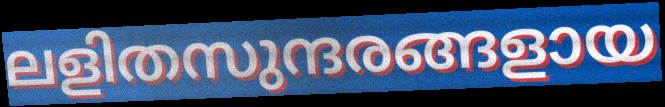
ലളിതസുന്ദരങ്ങളായ